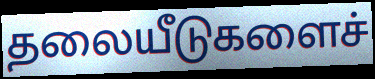
தலையீடுகளைச்